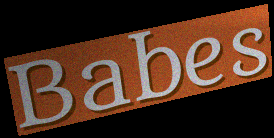
Babes